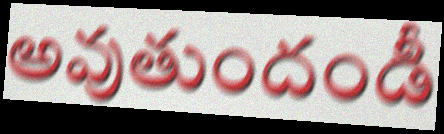
అవుతుందండీ